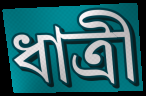
ধাত্ৰী